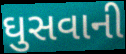
ઘુસવાની